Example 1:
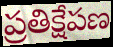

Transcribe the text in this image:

ప్రతిక్షేపణ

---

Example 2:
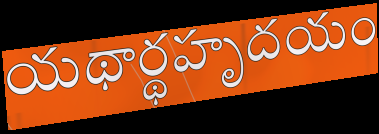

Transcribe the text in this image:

యథార్థహృదయం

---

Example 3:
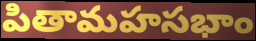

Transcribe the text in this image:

పితామహసభాం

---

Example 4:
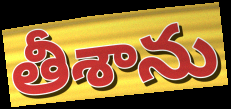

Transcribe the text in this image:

తీశాను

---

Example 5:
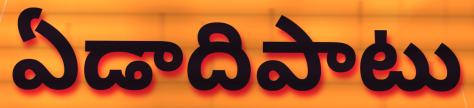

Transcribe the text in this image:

ఏడాదిపాటు